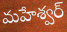
మహేశ్వర్